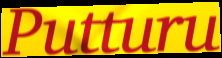
Putturu